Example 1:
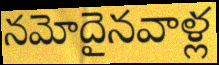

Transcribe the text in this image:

నమోదైనవాళ్ల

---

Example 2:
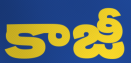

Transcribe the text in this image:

కాజీ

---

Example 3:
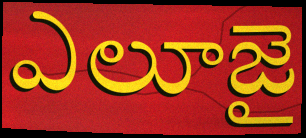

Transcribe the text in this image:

ఎలూజై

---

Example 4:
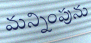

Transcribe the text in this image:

మన్నింపును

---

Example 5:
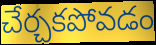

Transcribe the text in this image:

చేర్చకపోవడం